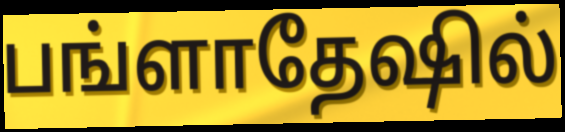
பங்ளாதேஷில்